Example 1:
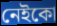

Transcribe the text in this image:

নেইকো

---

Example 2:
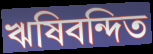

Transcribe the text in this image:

ঋষিবন্দিত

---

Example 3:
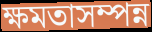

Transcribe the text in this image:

ক্ষমতাসম্পন্ন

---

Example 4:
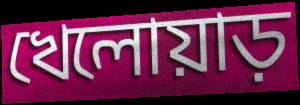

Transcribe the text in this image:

খেলোয়াড়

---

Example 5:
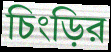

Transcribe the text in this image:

চিংড়ির